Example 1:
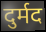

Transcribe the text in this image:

दुर्मद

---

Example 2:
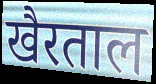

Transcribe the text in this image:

खैरताल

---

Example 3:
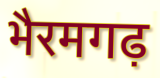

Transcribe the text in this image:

भैरमगढ़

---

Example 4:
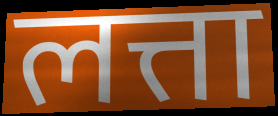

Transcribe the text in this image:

लत्ता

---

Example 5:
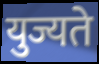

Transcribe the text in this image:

युज्यते